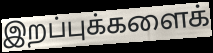
இறப்புக்களைக்